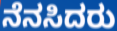
ನೆನಸಿದರು